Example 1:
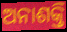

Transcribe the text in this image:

ଅନାଶକ୍ତି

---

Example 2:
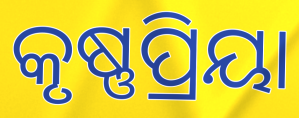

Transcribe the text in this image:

କୃଷ୍ଣପ୍ରିୟା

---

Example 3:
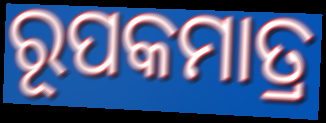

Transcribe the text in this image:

ରୂପକମାତ୍ର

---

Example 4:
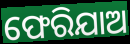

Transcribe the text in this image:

ଫେରିଯାଅ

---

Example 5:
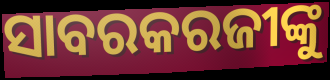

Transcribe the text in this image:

ସାବରକରଜୀଙ୍କୁ